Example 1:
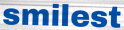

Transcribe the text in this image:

smilest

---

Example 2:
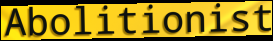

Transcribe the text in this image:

Abolitionist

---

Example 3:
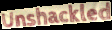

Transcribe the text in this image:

Unshackled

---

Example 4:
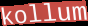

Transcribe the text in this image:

kollum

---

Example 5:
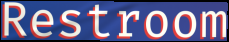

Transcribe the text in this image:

Restroom